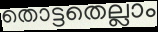
തൊട്ടതെല്ലാം